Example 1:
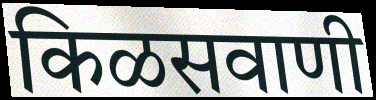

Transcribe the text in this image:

किळसवाणी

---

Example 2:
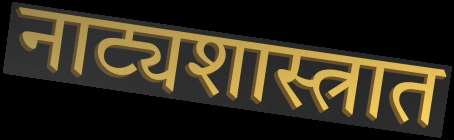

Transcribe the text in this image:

नाट्यशास्त्रात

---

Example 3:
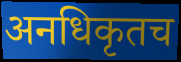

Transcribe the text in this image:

अनधिकृतच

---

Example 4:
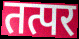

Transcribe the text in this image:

तत्पर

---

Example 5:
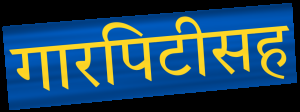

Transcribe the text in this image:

गारपिटीसह